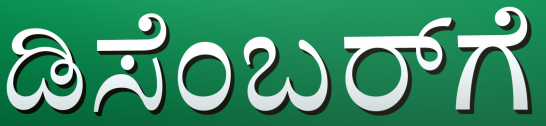
ಡಿಸೆಂಬರ್‌ಗೆ